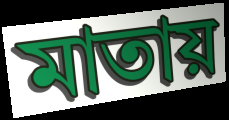
মাতায়